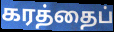
கரத்தைப்